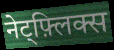
नेट्फ़्लिक्स